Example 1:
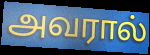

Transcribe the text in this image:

அவரால்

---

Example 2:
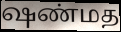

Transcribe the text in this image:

ஷண்மத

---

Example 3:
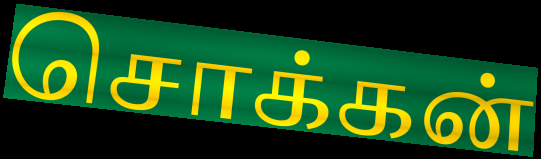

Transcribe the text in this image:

சொக்கன்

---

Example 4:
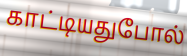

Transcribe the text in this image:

காட்டியதுபோல்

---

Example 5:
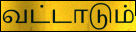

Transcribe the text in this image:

வட்டாடும்